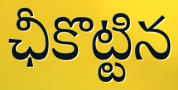
ఛీకొట్టిన